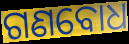
ଗଣବୋଧ